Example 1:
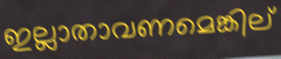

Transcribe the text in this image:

ഇല്ലാതാവണമെങ്കില്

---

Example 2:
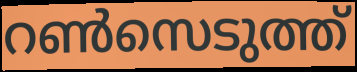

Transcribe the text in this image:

റൺസെടുത്ത്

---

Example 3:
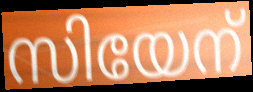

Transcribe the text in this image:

സിയേന്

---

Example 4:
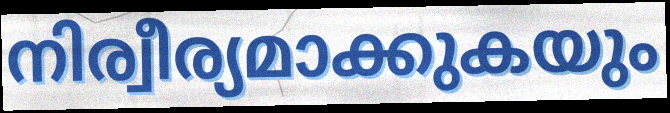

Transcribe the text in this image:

നിര്വീര്യമാക്കുകയും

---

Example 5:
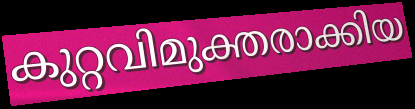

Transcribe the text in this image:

കുറ്റവിമുക്തരാക്കിയ